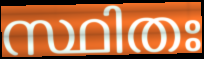
സ്ഥിതഃ